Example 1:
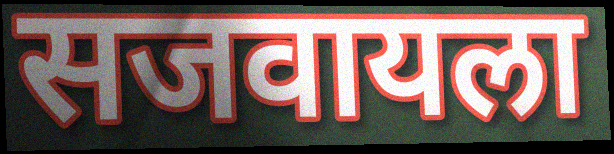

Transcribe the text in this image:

सजवायला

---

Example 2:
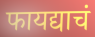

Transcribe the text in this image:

फायद्याचं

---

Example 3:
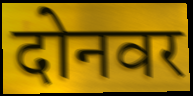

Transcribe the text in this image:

दोनवर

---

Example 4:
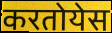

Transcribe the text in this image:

करतोयेस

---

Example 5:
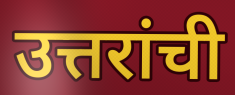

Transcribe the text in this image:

उत्तरांची